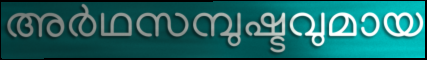
അർഥസമ്പുഷ്ടവുമായ